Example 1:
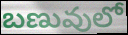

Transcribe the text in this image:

బణువులో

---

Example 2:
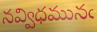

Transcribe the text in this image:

నవ్విధమునఁ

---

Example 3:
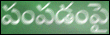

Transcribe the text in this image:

పంపడంపై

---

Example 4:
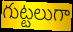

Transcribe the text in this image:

గుట్టలుగా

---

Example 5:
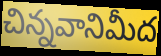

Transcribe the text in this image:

చిన్నవానిమీద